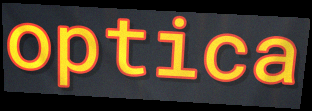
optica